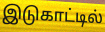
இடுகாட்டில்